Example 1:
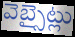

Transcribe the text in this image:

వెబ్సైట్లు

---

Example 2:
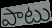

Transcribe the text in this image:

పాటు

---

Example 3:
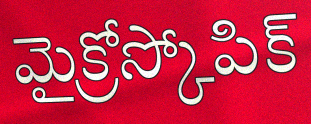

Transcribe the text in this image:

మైక్రోస్కోపిక్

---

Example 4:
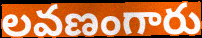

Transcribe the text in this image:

లవణంగారు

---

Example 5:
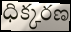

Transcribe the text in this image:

ధిక్కరణ